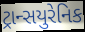
ટ્રાન્સયુરેનિક